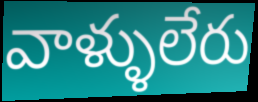
వాళ్ళులేరు